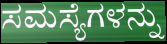
ಸಮಸ್ಯೆಗಳನ್ನು